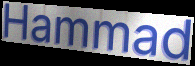
Hammad